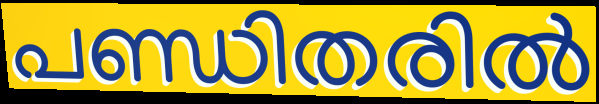
പണ്ഡിതരിൽ